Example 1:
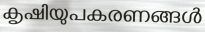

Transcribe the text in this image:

കൃഷിയുപകരണങ്ങൾ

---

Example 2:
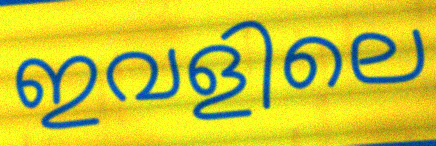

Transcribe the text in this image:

ഇവളിലെ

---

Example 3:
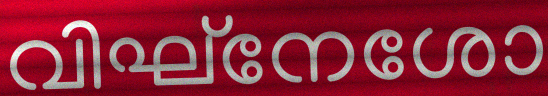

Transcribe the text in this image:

വിഘ്നേശോ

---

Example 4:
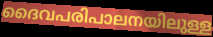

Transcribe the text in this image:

ദൈവപരിപാലനയിലുള്ള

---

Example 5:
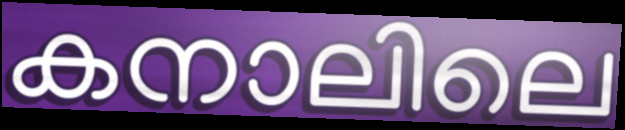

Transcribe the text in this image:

കനാലിലെ